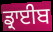
ਡ੍ਰਾਈਬ